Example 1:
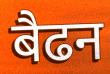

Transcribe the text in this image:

बैढन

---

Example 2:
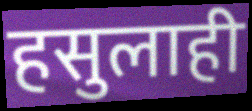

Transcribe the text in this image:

हसुलाही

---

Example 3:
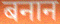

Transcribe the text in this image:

बनान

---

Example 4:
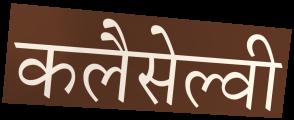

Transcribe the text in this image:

कलैसेल्वी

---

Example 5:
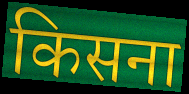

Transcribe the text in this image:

किसना